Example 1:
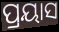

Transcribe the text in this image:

ପ୍ରୟାସ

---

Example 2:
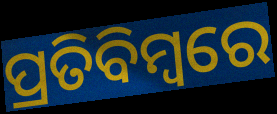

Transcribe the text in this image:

ପ୍ରତିବିମ୍ବରେ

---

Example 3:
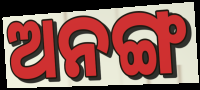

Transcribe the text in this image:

ଅନଙ୍ଗ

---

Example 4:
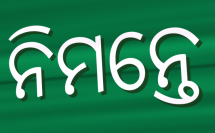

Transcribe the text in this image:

ନିମନ୍ତେ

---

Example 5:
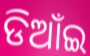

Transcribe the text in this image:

ଡିଆଁଇ